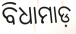
ବିଧାମାଡ଼